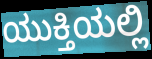
ಯುಕ್ತಿಯಲ್ಲಿ